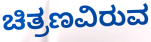
ಚಿತ್ರಣವಿರುವ